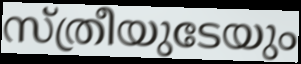
സ്ത്രീയുടേയും